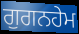
ਗੁਗਨਹੇਮ